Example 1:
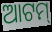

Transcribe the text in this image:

ଆଟମ୍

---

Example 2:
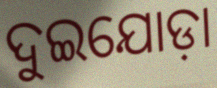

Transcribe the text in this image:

ଦୁଇଯୋଡ଼ା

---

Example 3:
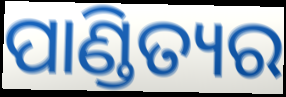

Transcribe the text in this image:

ପାଣ୍ଡିତ୍ୟର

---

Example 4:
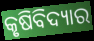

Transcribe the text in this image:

କୃଷିବିଦ୍ୟାର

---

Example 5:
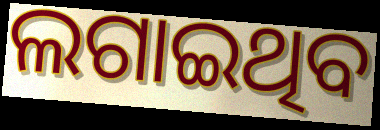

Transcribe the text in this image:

ଲଗାଇଥିବ